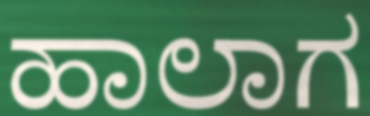
ಹಾಲಾಗ